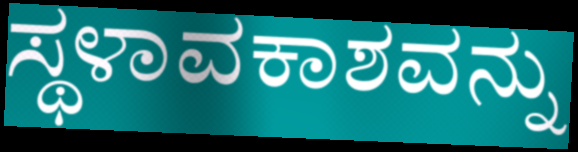
ಸ್ಥಳಾವಕಾಶವನ್ನು